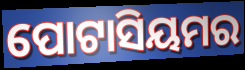
ପୋଟାସିୟମର